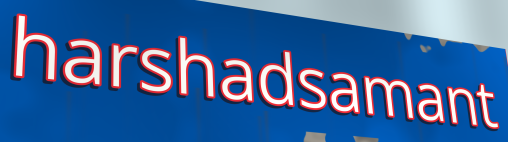
harshadsamant